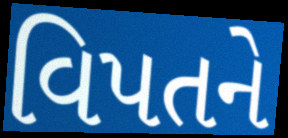
વિપતને